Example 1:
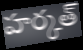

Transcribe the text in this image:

హర్కత్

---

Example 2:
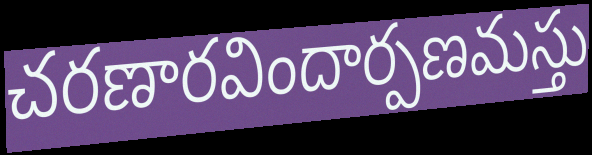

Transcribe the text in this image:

చరణారవిందార్పణమస్తు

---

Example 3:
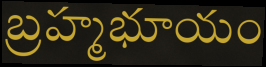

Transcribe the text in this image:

బ్రహ్మభూయం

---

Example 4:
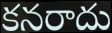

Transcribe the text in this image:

కనరాదు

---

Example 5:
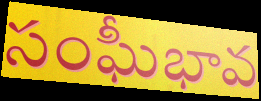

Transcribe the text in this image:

సంఘీభావ